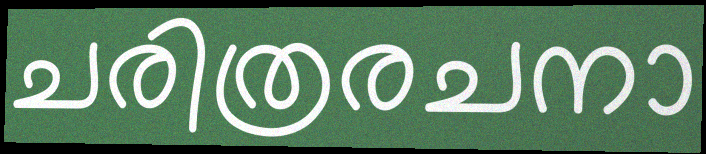
ചരിത്രരചനാ